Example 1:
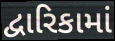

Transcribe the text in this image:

દ્વારિકામાં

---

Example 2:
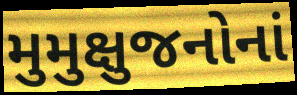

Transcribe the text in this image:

મુમુક્ષુજનોનાં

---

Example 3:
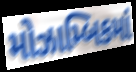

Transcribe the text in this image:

મોઝામ્બિકમાં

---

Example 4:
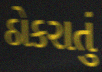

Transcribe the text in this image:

ઠોકરાતું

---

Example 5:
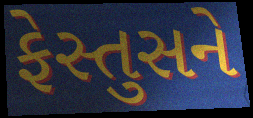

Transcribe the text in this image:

ફેસ્તુસને